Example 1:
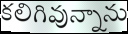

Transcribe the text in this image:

కలిగివున్నాను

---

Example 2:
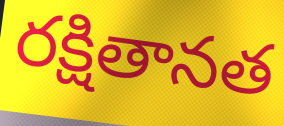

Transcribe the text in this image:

రక్షితానత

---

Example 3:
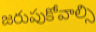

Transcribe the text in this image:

జరుపుకోవాల్సి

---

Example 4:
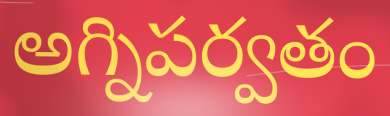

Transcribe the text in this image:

అగ్నిపర్వతం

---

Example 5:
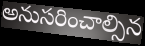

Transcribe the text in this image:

అనుసరించాల్సిన